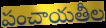
పంచాయతీల